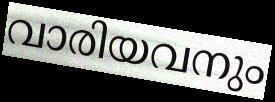
വാരിയവനും